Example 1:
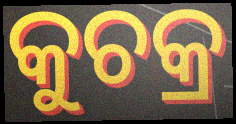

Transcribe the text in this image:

କୁଚକ୍ର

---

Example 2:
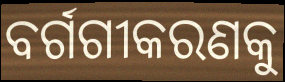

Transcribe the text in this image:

ବର୍ଗଗୀକରଣକୁ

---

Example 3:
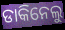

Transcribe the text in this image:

ଡାକିନେଲୁ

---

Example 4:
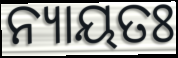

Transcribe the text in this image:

ନ୍ୟାୟତଃ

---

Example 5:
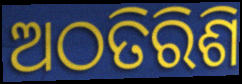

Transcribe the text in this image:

ଅଠତିରିଶି